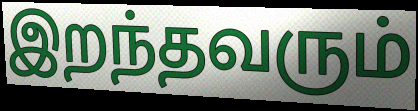
இறந்தவரும்